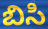
బిసి